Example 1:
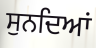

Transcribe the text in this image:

ਸੁਨਦਿਆਂ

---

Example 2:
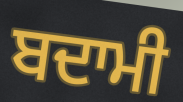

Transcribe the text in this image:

ਬਦਾਮੀ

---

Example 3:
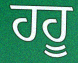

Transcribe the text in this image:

ਹਹੂ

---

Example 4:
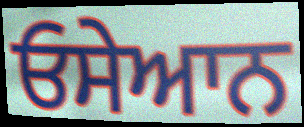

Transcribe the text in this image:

ਓਸੇਆਨ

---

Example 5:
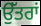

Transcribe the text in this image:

ਉੱਤਰਾਂ